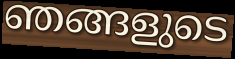
ഞങ്ങളുടെ